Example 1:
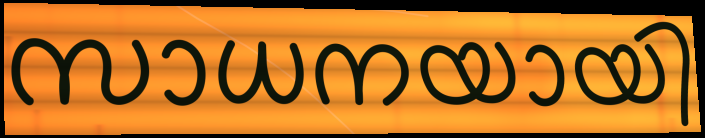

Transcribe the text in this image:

സാധനയായി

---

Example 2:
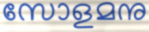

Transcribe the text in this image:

സോളമനു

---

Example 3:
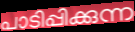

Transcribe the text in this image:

പാടിപ്പിക്കുന്ന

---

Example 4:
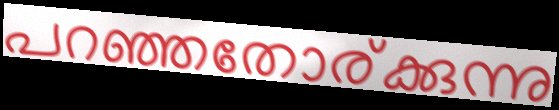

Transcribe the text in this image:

പറഞ്ഞതോര്ക്കുന്നു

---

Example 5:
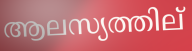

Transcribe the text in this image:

ആലസ്യത്തില്